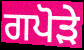
ਗਪੋੜੇ